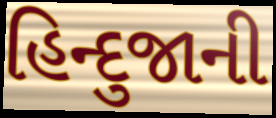
હિન્દુજાની